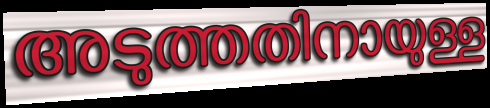
അടുത്തതിനായുള്ള